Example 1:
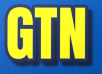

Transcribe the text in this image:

GTN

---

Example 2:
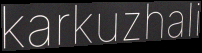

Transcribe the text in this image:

karkuzhali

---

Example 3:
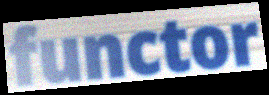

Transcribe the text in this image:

functor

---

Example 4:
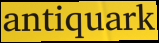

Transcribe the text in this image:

antiquark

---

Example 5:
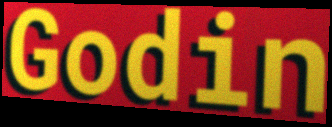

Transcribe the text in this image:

Godin